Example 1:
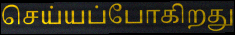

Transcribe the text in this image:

செய்யப்போகிறது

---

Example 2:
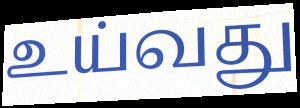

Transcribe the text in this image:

உய்வது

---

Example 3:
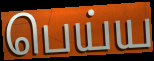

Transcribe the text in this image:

பெய்ய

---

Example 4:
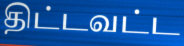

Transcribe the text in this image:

திட்டவட்ட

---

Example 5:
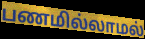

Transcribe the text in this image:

பணமில்லாமல்